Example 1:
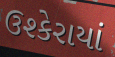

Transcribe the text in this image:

ઉશ્કેરાયાં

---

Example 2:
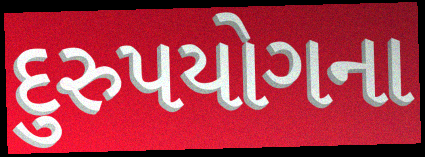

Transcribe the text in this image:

દુરુપયોગના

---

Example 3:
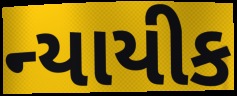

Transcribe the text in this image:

ન્યાયીક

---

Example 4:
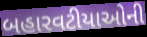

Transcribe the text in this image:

બહારવટીયાઓની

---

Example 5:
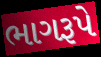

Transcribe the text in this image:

ભાગરૂપે